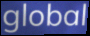
global